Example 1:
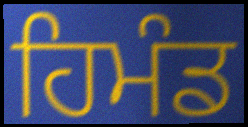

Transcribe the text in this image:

ਹਿਮੰਡ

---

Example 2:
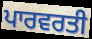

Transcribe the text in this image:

ਪਾਰਵਰਤੀ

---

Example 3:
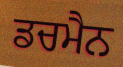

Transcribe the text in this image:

ਡਚਮੈਨ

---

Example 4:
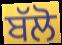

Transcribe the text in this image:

ਬੱਲੋ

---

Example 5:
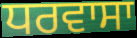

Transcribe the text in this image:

ਧਰਵਾਸਾ